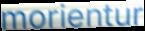
morientur